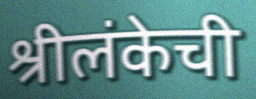
श्रीलंकेची